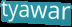
tyawar